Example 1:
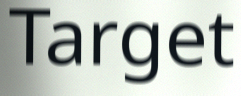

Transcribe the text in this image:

Target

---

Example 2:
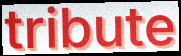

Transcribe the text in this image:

tribute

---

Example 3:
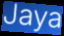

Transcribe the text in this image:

Jaya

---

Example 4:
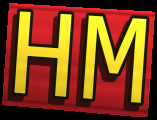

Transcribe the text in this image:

HM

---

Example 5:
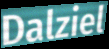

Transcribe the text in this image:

Dalziel